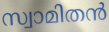
സ്വാമിതൻ